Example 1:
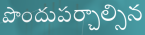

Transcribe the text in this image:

పొందుపర్చాల్సిన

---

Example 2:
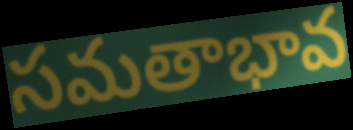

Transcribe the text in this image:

సమతాభావ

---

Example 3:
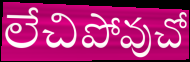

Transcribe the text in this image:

లేచిపోవుచో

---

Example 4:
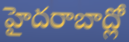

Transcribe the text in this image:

హైదరాబాద్లో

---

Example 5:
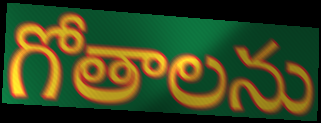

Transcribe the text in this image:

గోతాలను